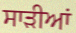
ਸਾਡ਼ੀਆਂ